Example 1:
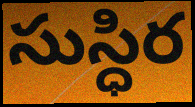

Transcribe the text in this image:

సుస్ధిర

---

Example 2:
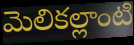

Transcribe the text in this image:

మెలికల్లాంటి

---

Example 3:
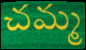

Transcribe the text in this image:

చమ్మ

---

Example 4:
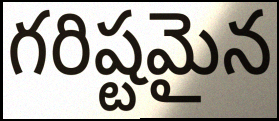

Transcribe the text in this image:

గరిష్టమైన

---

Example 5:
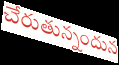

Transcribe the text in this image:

చేరుతున్నందున